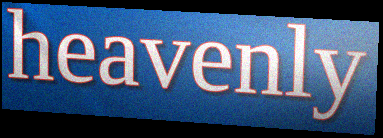
heavenly